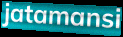
jatamansi